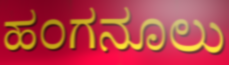
ಹಂಗನೂಲು